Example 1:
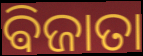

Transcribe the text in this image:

ଵିଜାତା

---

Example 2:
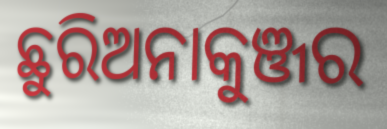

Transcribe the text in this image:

ଛୁରିଅନାକୁଞ୍ଜର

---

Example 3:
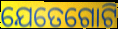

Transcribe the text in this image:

ଯେତେଗୋଟି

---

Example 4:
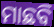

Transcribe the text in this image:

ମାଛବି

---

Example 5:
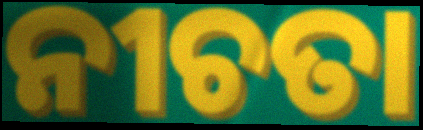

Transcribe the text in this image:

ନୀଚତା